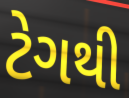
ટેગથી